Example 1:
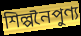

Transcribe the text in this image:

শিল্পনৈপুণ্য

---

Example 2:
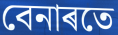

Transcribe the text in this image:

বেনাৰতে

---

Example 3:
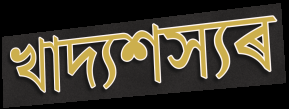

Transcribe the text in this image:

খাদ্যশস্যৰ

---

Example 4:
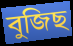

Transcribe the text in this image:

বুজিছ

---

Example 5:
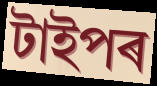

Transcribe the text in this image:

টাইপৰ